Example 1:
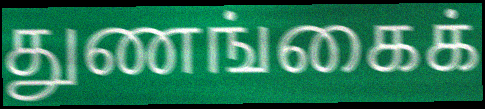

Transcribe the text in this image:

துணங்கைக்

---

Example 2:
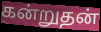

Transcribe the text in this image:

கன்றுதன்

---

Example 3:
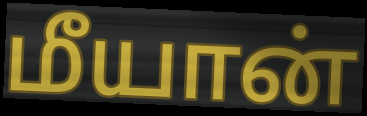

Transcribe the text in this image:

மீயான்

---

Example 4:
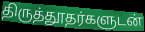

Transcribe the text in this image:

திருத்தூதர்களுடன்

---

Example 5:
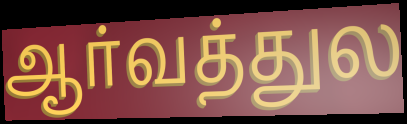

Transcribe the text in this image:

ஆர்வத்துல